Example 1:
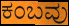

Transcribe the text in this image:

ಕಂಬವು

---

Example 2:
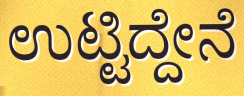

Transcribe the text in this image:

ಉಟ್ಟಿದ್ದೇನೆ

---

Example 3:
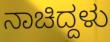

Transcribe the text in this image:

ನಾಚಿದ್ದಳು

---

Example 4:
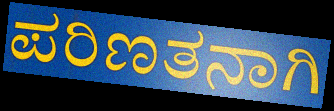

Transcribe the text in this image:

ಪರಿಣತನಾಗಿ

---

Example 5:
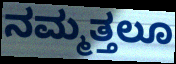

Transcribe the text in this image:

ನಮ್ಮತ್ತಲೂ